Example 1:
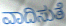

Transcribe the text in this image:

ವಾದಿಸುತೆ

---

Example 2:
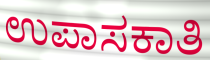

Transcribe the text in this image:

ಉಪಾಸಕಾತಿ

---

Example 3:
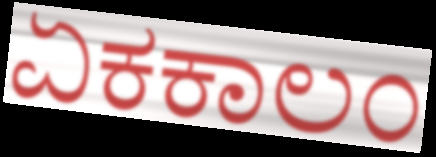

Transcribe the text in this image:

ಏಕಕಾಲಂ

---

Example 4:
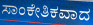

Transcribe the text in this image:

ಸಾಂಕೇತಿಕವಾದ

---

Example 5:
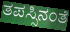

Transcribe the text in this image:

ತಪಸ್ಸಿನಂತೆ